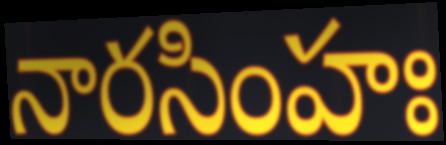
నారసింహః